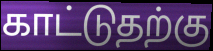
காட்டுதற்கு